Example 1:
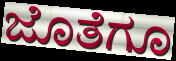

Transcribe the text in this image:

ಜೊತೆಗೂ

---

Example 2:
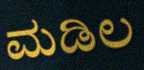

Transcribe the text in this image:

ಮಡಿಲ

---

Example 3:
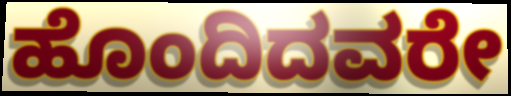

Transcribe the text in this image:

ಹೊಂದಿದವರೇ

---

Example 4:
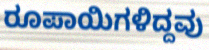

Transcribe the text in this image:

ರೂಪಾಯಿಗಳಿದ್ದವು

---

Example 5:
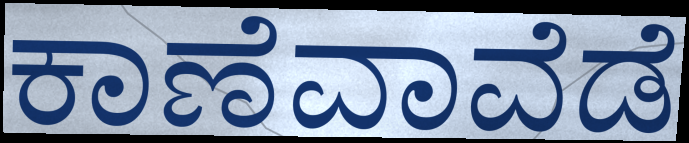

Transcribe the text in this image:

ಕಾಣೆವಾವೆಡೆ